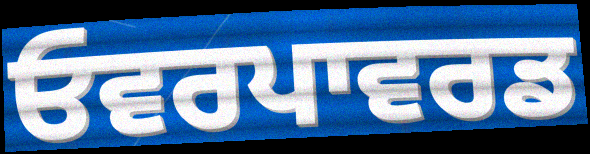
ਓਵਰਪਾਵਰਡ